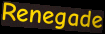
Renegade